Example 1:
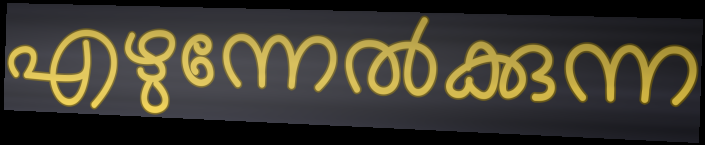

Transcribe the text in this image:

എഴുന്നേൽക്കുന്ന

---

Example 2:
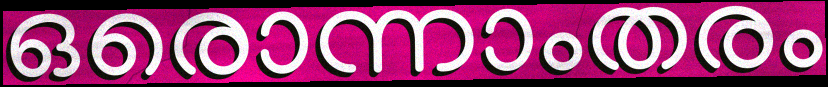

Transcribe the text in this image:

ഒരൊന്നാംതരം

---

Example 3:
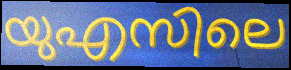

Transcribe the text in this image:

യുഎസിലെ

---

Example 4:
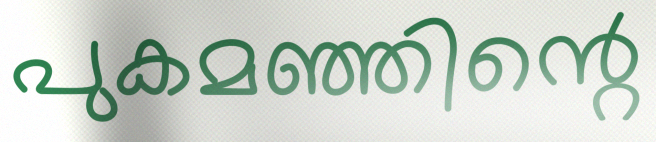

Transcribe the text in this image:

പുകമഞ്ഞിന്റെ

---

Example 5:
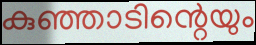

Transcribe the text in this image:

കുഞ്ഞാടിന്റെയും